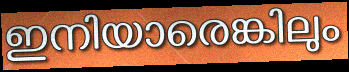
ഇനിയാരെങ്കിലും